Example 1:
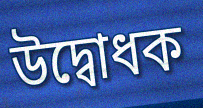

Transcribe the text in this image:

উদ্বোধক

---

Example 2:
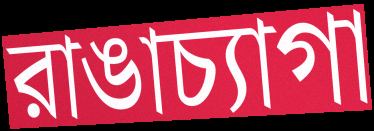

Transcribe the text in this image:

রাঙাচ্যাগা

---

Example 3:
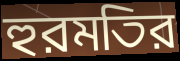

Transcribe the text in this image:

হুরমতির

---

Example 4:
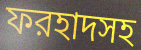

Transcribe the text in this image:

ফরহাদসহ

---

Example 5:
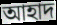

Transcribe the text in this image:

আহাদ